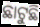
ଛାଟୁଛି